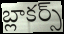
బ్లాకర్స్